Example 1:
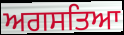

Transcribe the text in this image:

ਅਗਸਤਿਆ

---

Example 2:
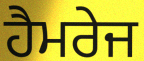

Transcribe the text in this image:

ਹੈਮਰੇਜ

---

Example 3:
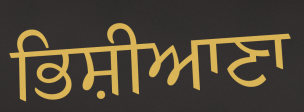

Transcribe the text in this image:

ਭਿਸ਼ੀਆਣਾ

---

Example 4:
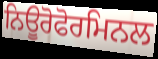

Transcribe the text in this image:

ਨਿਊਰੋਫੋਰਮਿਨਲ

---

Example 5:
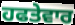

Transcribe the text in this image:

ਹਫਤੇਵਾਰ